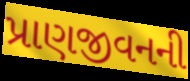
પ્રાણજીવનની